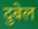
दुबेल